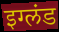
इग्लंड